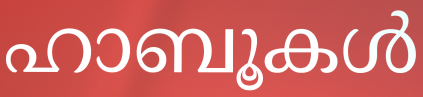
ഹാബൂകൾ